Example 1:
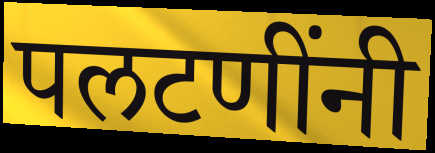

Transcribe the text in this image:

पलटणींनी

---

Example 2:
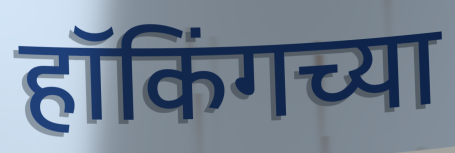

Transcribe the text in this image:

हॉकिंगच्या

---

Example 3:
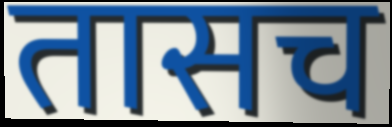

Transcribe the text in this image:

तासच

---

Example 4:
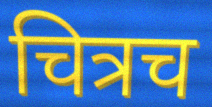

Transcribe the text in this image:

चित्रच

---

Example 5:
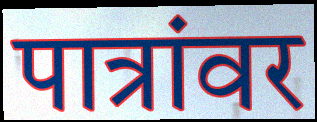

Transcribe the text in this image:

पात्रांवर